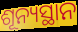
ଶୂନ୍ୟସ୍ଥାନ